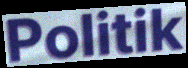
Politik